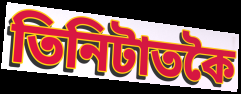
তিনিটাতকৈ